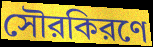
সৌরকিরণে